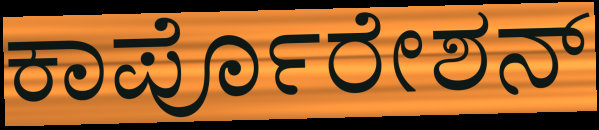
ಕಾರ್ಪೊರೇಶನ್